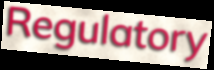
Regulatory